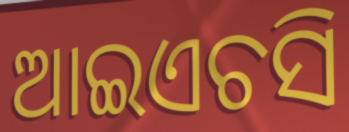
ଆଇଏଚସି